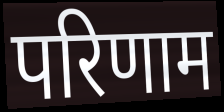
परिणाम